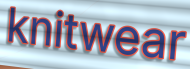
knitwear